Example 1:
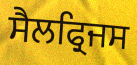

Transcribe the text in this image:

ਸੈਲਫ੍ਰਿਜਸ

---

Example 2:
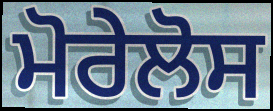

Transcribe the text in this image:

ਮੋਰੇਲੋਸ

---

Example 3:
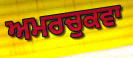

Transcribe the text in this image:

ਅਮਰਚੁਕਵਾ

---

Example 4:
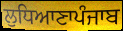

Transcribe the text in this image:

ਲੁਧਿਆਣਾਪੰਜਾਬ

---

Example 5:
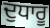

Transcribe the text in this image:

ਦੁਧਾਰੂ